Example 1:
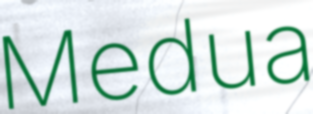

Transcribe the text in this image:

Medua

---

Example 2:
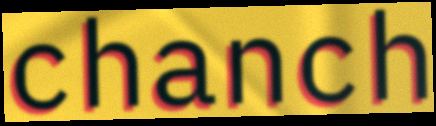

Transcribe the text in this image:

chanch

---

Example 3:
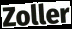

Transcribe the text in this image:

Zoller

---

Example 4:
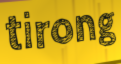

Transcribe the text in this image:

tirong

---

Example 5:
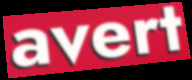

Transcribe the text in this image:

avert